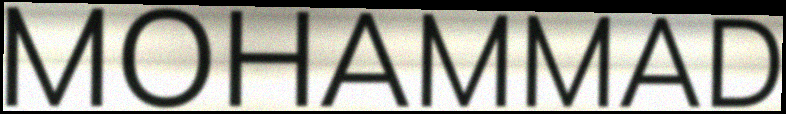
MOHAMMAD